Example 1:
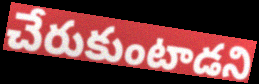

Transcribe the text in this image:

చేరుకుంటాడని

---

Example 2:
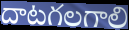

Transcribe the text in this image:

దాటగలగాలి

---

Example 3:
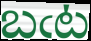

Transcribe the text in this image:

బఁట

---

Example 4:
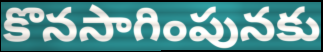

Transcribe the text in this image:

కొనసాగింపునకు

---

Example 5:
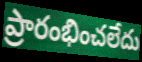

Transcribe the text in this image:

ప్రారంభించలేదు